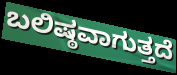
ಬಲಿಷ್ಠವಾಗುತ್ತದೆ